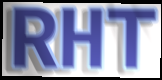
RHT